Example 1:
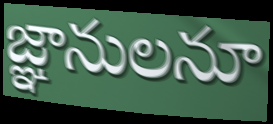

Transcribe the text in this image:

జ్ఞానులనూ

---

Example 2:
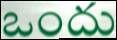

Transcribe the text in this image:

ఒందు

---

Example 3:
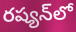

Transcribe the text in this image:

రష్యన్‌లో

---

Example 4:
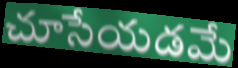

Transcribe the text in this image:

చూసేయడమే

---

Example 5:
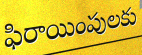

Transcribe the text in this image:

ఫిరాయింపులకు